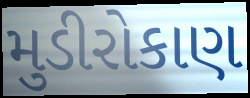
મુડીરોકાણ